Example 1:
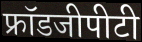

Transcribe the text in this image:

फ्रॉडजीपीटी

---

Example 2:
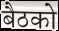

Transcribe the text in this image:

बैठको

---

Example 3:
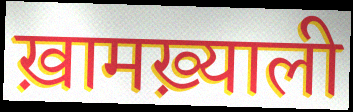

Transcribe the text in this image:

ख़ामख़्याली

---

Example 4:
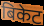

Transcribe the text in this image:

बिकेट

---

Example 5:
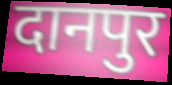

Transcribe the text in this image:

दानपुर